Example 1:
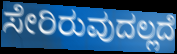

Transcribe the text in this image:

ಸೇರಿರುವುದಲ್ಲದೆ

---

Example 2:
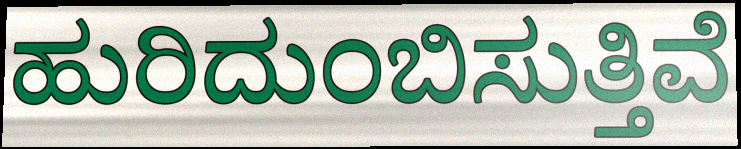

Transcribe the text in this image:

ಹುರಿದುಂಬಿಸುತ್ತಿವೆ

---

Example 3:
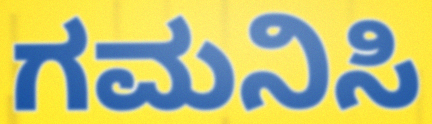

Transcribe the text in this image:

ಗಮನಿಸಿ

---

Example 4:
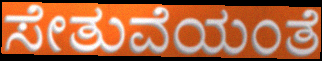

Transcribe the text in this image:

ಸೇತುವೆಯಂತೆ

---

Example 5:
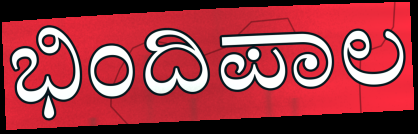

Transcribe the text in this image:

ಭಿಂದಿಪಾಲ